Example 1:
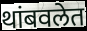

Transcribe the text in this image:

थांबवलेत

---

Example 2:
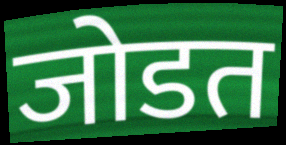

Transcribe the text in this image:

जोडत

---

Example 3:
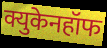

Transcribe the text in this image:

क्युकेनहॉफ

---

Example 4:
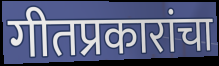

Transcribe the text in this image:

गीतप्रकारांचा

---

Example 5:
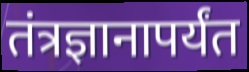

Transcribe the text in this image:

तंत्रज्ञानापर्यंत